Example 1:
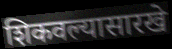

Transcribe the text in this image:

शिकवल्यासारखे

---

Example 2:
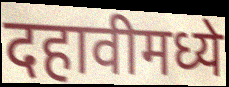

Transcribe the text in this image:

दहावीमध्ये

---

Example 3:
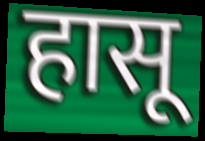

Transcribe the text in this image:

हासू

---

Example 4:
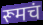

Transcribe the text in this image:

रूमचं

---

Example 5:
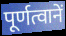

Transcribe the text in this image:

पूर्णत्वानें